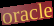
oracle